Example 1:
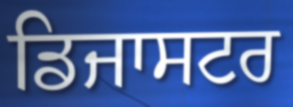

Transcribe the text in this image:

ਡਿਜਾਸਟਰ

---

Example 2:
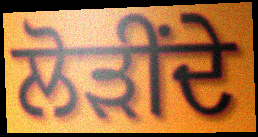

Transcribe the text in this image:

ਲੋੜੀਂਦੇ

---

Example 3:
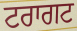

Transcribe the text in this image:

ਟਰਾਗਟ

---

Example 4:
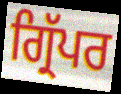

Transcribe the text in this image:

ਗ੍ਰਿੱਪਰ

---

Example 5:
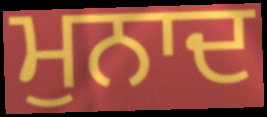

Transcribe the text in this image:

ਮੁਨਾਦ